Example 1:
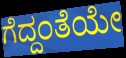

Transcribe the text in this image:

ಗೆದ್ದಂತೆಯೇ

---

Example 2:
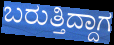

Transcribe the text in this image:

ಬರುತ್ತಿದ್ದಾಗ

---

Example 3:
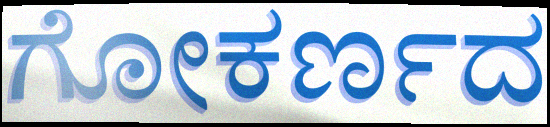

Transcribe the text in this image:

ಗೋಕರ್ಣದ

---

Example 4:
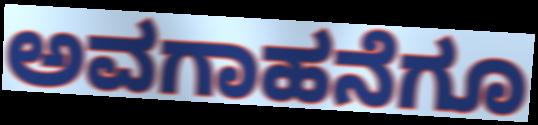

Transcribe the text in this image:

ಅವಗಾಹನೆಗೂ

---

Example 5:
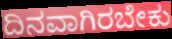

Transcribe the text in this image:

ದಿನವಾಗಿರಬೇಕು